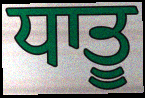
ਧਾਤੂ